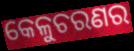
କେଳୁଚରଣର